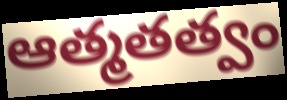
ఆత్మతత్వం